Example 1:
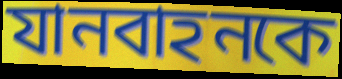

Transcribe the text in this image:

যানবাহনকে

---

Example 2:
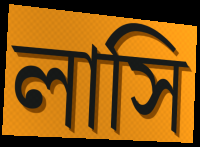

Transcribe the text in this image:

লাসি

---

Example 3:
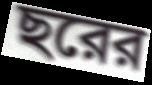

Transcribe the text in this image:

ছরের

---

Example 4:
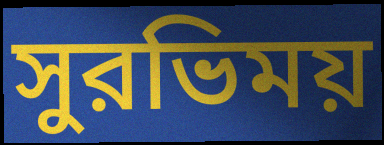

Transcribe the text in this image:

সুরভিময়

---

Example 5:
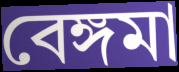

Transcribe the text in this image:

বেঙ্গমা